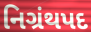
નિગ્રંથપદ